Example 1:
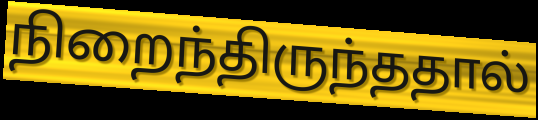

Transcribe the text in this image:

நிறைந்திருந்ததால்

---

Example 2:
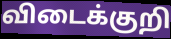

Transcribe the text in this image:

விடைக்குறி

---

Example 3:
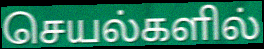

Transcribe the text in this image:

செயல்களில்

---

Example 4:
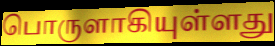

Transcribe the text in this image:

பொருளாகியுள்ளது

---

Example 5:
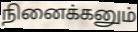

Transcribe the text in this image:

நினைக்கனும்